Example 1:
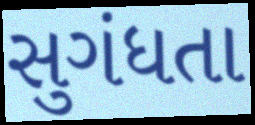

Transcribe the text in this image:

સુગંધતા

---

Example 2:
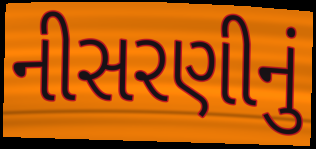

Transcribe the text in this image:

નીસરણીનું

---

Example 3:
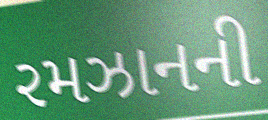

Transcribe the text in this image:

રમઝાનની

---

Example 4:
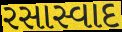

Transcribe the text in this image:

રસાસ્વાદ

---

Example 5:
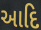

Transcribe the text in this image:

આદિ